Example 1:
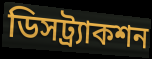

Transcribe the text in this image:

ডিসট্র্যাকশন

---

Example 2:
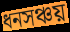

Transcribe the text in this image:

ধনসঞ্চয়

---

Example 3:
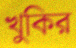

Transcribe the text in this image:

খুকির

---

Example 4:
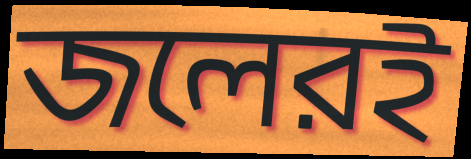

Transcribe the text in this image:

জলেরই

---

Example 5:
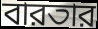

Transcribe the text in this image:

বারতার